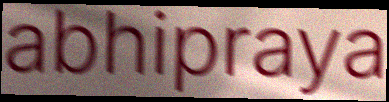
abhipraya